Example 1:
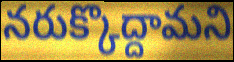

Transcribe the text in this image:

నరుక్కొద్దామని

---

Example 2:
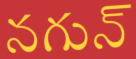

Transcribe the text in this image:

నగున్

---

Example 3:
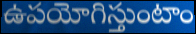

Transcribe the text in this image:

ఉపయోగిస్తుంటాం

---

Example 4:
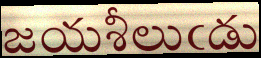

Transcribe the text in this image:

జయశీలుఁడు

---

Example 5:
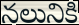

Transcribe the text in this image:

నలునికి